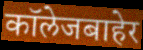
कॉलेजबाहेर